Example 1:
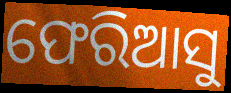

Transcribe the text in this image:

ଫେରିଆସୁ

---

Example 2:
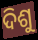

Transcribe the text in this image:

ଦିଶୁ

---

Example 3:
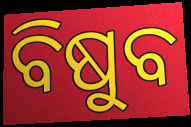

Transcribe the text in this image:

ବିଷୁବ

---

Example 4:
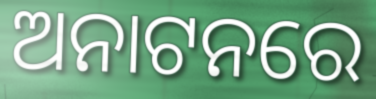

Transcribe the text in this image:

ଅନାଟନରେ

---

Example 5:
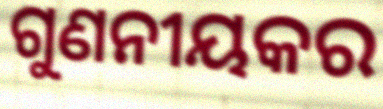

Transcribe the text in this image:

ଗୁଣନୀୟକର